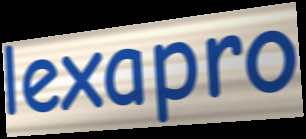
lexapro